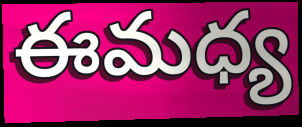
ఈమధ్య